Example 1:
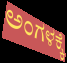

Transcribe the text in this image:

ಅಂಗಳಕ್ಕೆ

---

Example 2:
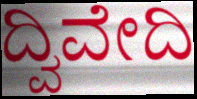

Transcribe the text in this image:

ದ್ವಿವೇದಿ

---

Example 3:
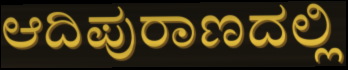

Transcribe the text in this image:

ಆದಿಪುರಾಣದಲ್ಲಿ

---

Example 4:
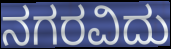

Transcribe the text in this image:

ನಗರವಿದು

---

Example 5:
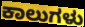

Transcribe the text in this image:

ಕಾಲುಗಳು